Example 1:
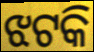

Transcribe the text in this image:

ଝଟକି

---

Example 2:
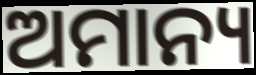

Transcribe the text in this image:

ଅମାନ୍ୟ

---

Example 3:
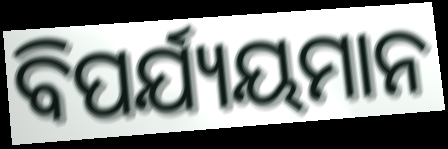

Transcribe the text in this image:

ବିପର୍ଯ୍ୟୟମାନ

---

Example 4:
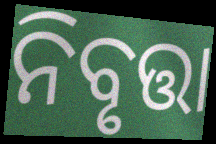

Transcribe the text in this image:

ନିବୃତ୍ତା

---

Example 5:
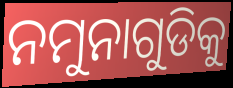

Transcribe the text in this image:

ନମୁନାଗୁଡିକୁ